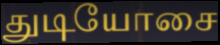
துடியோசை